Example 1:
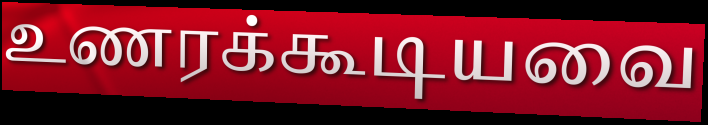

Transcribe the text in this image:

உணரக்கூடியவை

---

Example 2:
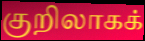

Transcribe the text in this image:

குறிலாகக்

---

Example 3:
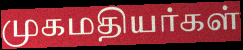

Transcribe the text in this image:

முகமதியர்கள்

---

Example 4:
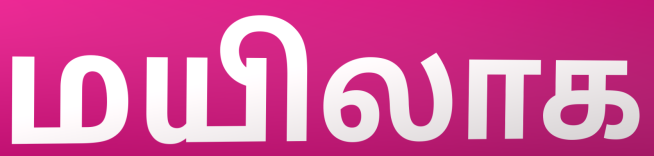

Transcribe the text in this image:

மயிலாக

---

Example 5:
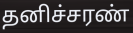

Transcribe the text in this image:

தனிச்சரண்